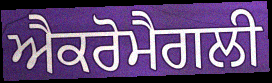
ਐਕਰੋਮੈਗਲੀ